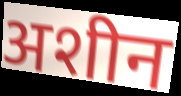
अशीन